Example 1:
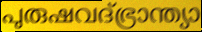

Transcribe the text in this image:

പുരുഷവദ്ഭ്രാന്ത്യാ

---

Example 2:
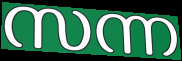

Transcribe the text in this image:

സന്ന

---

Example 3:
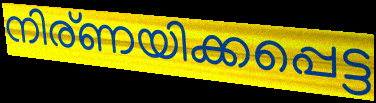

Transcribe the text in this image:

നിര്ണയിക്കപ്പെട്ട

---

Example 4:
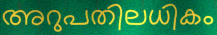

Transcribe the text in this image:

അറുപതിലധികം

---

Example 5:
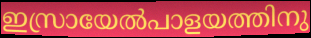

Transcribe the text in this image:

ഇസ്രായേൽപാളയത്തിനു